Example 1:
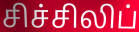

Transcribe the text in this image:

சிச்சிலிப்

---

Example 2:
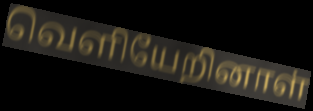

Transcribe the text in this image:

வெளியேறினாள்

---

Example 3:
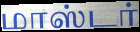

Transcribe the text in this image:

மாஸ்டர்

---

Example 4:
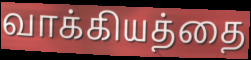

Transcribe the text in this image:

வாக்கியத்தை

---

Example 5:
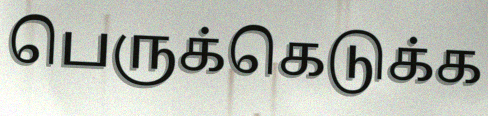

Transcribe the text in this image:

பெருக்கெடுக்க